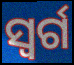
ସ୍ବର୍ଗ